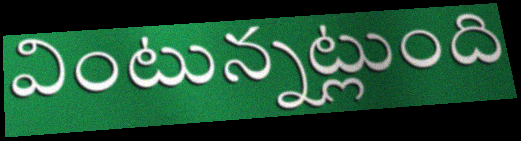
వింటున్నట్లుంది